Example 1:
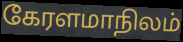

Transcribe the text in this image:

கேரளமாநிலம்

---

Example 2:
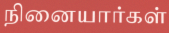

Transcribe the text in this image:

நினையார்கள்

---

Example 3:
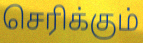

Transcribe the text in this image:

செரிக்கும்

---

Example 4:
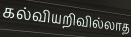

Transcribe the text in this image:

கல்வியறிவில்லாத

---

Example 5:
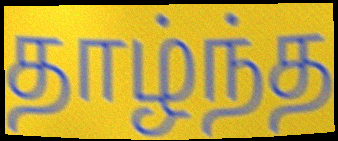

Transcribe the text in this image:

தாழ்ந்த